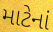
માટેનાં